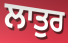
ਲਾਤੁਰ